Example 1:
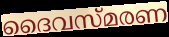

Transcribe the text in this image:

ദൈവസ്മരണ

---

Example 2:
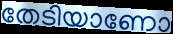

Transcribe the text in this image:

തേടിയാണോ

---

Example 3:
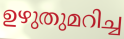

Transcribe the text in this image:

ഉഴുതുമറിച്ച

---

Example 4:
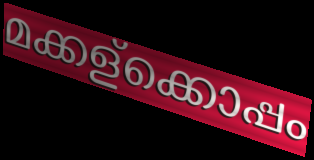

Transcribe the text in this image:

മക്കള്ക്കൊപ്പം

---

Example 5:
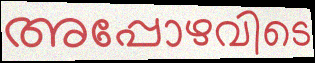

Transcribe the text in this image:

അപ്പോഴവിടെ